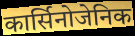
कार्सिनोजेनिक